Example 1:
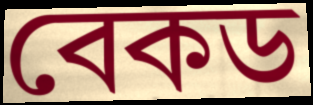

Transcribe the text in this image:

বেকড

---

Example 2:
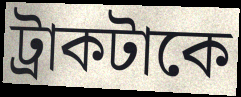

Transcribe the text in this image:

ট্রাকটাকে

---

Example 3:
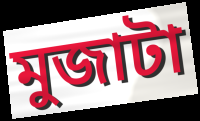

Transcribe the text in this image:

মুজাটা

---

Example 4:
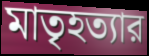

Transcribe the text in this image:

মাতৃহত্যার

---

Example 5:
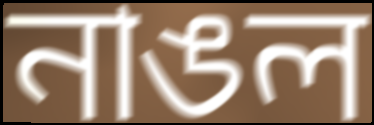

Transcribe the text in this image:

নাঙল